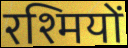
रश्मियों